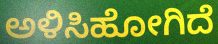
ಅಳಿಸಿಹೋಗಿದೆ